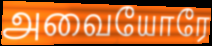
அவையோரே